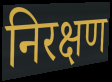
निरक्षण